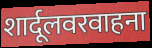
शार्दूलवरवाहना